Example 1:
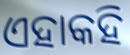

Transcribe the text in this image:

ଏହାକହି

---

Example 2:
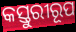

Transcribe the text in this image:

କସ୍ତୁରୀରୂପ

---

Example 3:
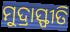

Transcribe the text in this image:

ମୁଦ୍ରାସ୍ଫୀତି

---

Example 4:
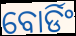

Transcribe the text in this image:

ବୋର୍ଡିଂ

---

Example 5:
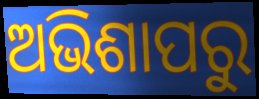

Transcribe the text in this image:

ଅଭିଶାପରୁ